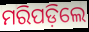
ମରିପଡ଼ିଲେ